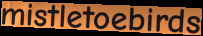
mistletoebirds